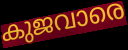
കുജവാരെ